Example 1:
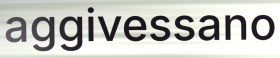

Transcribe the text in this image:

aggivessano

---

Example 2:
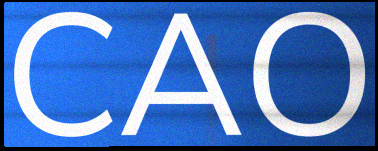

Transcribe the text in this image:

CAO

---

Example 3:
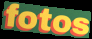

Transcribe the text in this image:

fotos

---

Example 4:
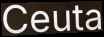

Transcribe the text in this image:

Ceuta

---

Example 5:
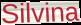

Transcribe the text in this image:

Silvina